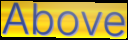
Above